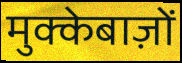
मुक्केबाज़ों